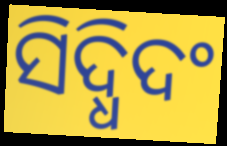
ସିଦ୍ଧିଦଂ